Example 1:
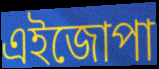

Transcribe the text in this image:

এইজোপা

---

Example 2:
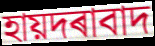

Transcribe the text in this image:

হায়দৰাবাদ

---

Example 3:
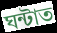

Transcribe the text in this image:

ঘন্টাত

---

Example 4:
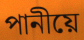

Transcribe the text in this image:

পানীয়ে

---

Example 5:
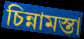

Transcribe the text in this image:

চিন্নামস্তা